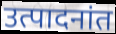
उत्पादनांत